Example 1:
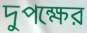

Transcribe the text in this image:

দুপক্ষের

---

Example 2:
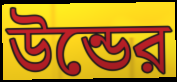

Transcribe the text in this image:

উন্ডের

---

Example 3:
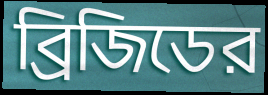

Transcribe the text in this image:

ব্রিজিডের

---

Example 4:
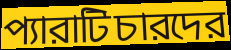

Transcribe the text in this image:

প্যারাটিচারদের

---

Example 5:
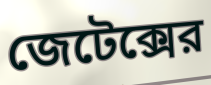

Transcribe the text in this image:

জেটেক্সের